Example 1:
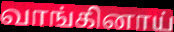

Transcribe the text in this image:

வாங்கினாய்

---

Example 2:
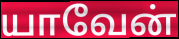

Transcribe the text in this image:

யாவேன்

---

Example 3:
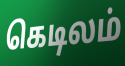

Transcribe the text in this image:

கெடிலம்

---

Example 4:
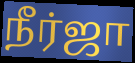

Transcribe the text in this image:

நீர்ஜா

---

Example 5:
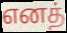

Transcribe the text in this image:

எனத்